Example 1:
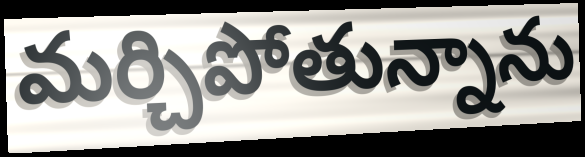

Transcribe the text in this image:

మర్చిపోతున్నాను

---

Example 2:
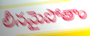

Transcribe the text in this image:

లీనమైపోతాం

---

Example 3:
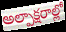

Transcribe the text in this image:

అల్పాక్షరాల్లో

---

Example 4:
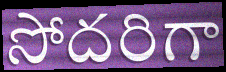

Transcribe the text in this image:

సోదరిగా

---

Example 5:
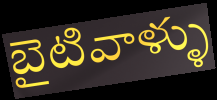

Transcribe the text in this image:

బైటివాళ్ళు